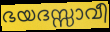
ഭയദസ്സാവീ